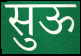
सुऊ